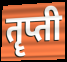
तॄप्ती